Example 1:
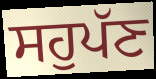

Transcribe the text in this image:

ਸਹੁਪੱਣ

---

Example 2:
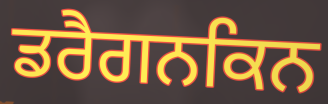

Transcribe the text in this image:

ਡਰੈਗਨਕਿਨ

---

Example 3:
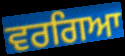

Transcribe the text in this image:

ਵਰਗਿਆ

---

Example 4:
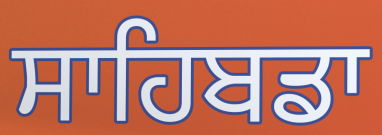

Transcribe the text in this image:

ਸਾਹਿਬਡਾ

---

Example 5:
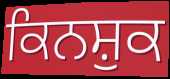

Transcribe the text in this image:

ਕਿਨਸ਼ੁਕ